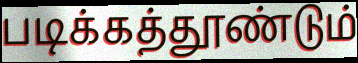
படிக்கத்தூண்டும்